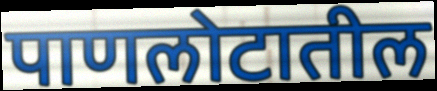
पाणलोटातील